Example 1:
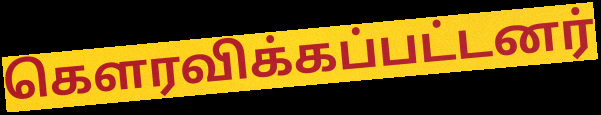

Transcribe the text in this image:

கௌரவிக்கப்பட்டனர்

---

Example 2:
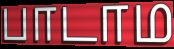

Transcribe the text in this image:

பாடாம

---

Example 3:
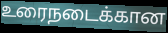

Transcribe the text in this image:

உரைநடைக்கான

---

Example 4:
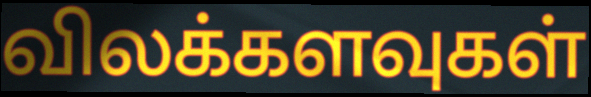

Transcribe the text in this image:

விலக்களவுகள்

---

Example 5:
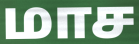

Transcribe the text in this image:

மாச